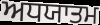
ਅਧਯਾਤਮ